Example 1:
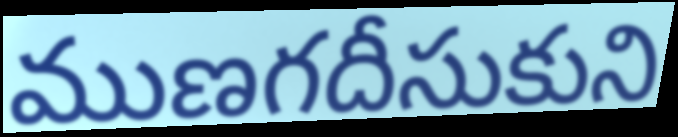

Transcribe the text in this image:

ముణగదీసుకుని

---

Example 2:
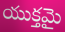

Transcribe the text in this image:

యుక్తమై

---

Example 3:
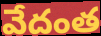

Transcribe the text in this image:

వేదంత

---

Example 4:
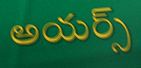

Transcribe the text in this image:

అయర్స్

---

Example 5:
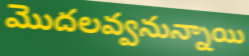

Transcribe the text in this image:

మొదలవ్వనున్నాయి